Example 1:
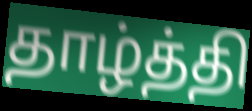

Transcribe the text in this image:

தாழ்த்தி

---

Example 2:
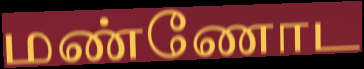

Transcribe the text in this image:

மண்ணோட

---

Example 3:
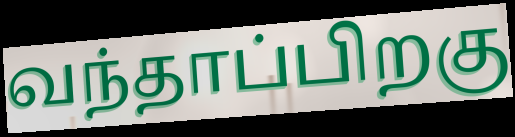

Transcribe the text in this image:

வந்தாப்பிறகு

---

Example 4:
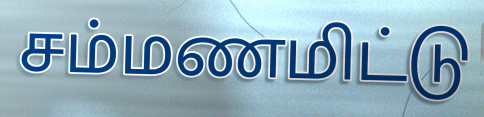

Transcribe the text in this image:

சம்மணமிட்டு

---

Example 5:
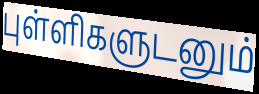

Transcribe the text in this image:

புள்ளிகளுடனும்